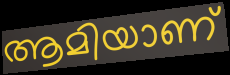
ആമിയാണ്